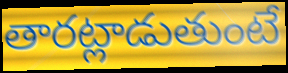
తారట్లాడుతుంటే